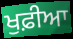
ਖੁਫ਼ੀਆ